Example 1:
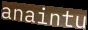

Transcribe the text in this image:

anaintu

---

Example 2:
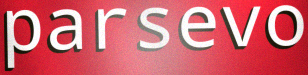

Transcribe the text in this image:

parsevo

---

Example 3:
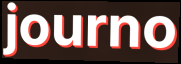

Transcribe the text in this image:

journo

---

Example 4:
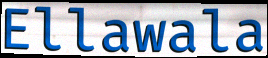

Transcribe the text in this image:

Ellawala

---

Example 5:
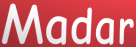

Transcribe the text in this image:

Madar